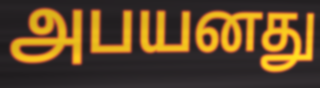
அபயனது